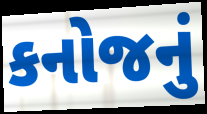
કનોજનું